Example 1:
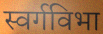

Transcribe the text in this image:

स्वर्गविभा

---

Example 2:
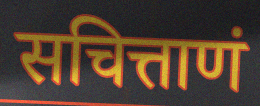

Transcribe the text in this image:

सचित्ताणं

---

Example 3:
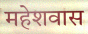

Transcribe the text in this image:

महेशवास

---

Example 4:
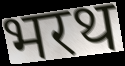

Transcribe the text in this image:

भरथ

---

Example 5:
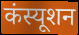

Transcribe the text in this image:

कंस्यूशन